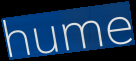
hume